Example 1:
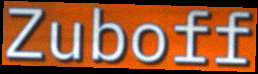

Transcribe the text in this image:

Zuboff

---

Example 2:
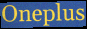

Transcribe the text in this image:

Oneplus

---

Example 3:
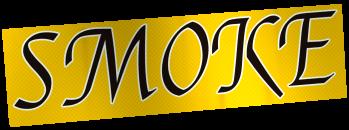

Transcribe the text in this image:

SMOKE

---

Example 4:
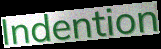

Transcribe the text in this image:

Indention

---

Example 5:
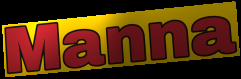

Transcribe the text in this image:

Manna